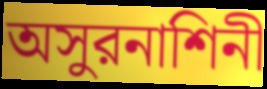
অসুরনাশিনী